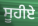
ਸੂਹੀਏ